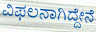
ವಿಫಲನಾಗಿದ್ದೇನೆ